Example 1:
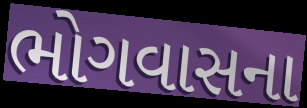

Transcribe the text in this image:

ભોગવાસના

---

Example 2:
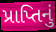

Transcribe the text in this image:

પ્રાપ્‍તિનું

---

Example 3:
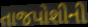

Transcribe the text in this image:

તાજપોશીની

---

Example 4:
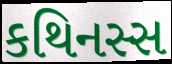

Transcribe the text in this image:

કથિનસ્સ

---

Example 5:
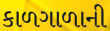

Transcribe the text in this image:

કાળગાળાની